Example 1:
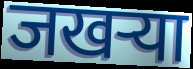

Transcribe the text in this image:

जखऱ्या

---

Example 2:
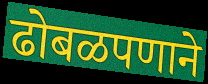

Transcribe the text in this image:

ढोबळपणाने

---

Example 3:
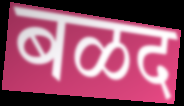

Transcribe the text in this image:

बळद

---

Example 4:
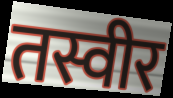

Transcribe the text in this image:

तस्वीर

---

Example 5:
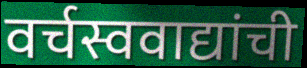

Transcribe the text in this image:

वर्चस्ववाद्यांची